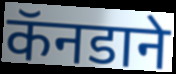
कॅनडाने